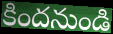
కిందనుండి